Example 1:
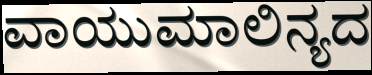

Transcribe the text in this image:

ವಾಯುಮಾಲಿನ್ಯದ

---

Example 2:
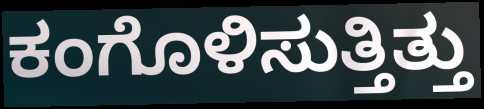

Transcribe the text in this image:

ಕಂಗೊಳಿಸುತ್ತಿತ್ತು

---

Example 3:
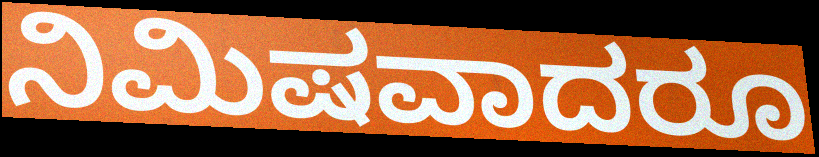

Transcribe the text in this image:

ನಿಮಿಷವಾದರೂ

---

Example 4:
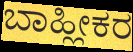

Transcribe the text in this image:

ಬಾಹ್ಲೀಕರ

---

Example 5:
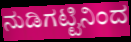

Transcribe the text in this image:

ನುಡಿಗಟ್ಟಿನಿಂದ